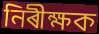
নিৰীক্ষক